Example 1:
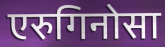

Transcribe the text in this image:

एरुगिनोसा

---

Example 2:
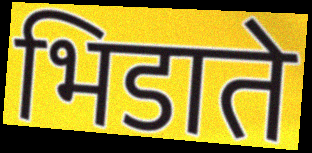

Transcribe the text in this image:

भिडाते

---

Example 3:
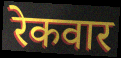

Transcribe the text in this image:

रेकवार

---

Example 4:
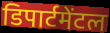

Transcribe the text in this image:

डिपार्टमेंटल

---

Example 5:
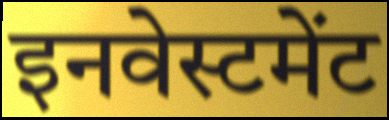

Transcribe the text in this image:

इनवेस्टमेंट